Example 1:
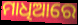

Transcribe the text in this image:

ମାଧିଆରେ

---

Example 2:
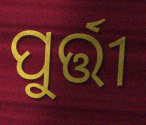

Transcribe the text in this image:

ପୁର୍ତ୍ତୀ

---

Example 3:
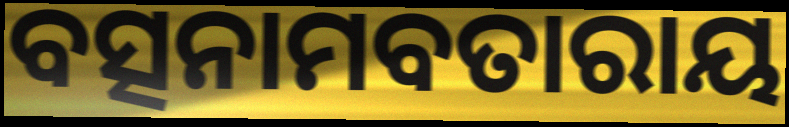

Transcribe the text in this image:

ବତ୍ସନାମବତାରାୟ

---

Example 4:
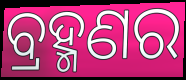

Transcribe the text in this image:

ବ୍ରହ୍ମଣର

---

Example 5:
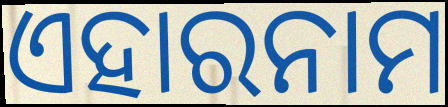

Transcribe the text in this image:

ଏହାରନାମ